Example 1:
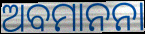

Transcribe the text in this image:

ଅବମାନନା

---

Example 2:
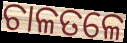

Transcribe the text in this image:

ଚାଳତଳେ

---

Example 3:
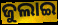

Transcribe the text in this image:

ଜୁଲାଇ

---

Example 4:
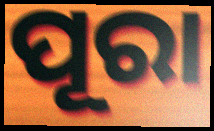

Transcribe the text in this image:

ପୂରା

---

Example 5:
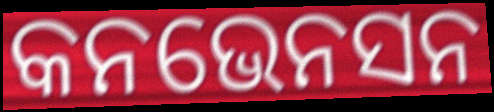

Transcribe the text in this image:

କନଭେନସନ